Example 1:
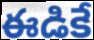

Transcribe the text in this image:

ఈడికే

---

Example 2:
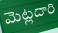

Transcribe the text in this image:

మెట్లదారి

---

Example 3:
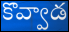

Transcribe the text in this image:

కొవ్వాడ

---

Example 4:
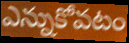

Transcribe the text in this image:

ఎన్నుకోవటం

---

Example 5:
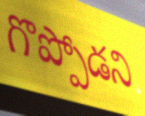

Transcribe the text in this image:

గొప్పోడని